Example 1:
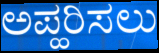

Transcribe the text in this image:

ಅಪ್ಹರಿಸಲು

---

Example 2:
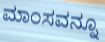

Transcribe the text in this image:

ಮಾಂಸವನ್ನೂ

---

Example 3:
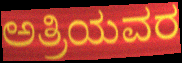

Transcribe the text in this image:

ಅತ್ರಿಯವರ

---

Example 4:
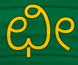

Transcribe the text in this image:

ಛೀ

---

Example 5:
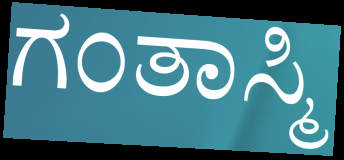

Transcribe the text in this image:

ಗಂತಾಸ್ಮಿ